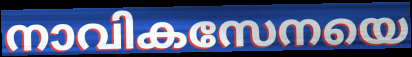
നാവികസേനയെ